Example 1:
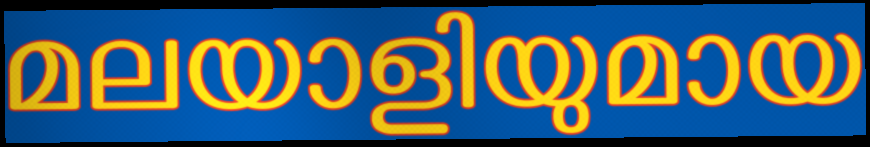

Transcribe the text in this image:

മലയാളിയുമായ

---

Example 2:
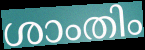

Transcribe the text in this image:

ശാംതിം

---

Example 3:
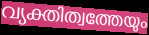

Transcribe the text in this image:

വ്യക്തിത്വത്തേയും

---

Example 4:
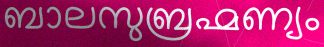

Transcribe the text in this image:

ബാലസുബ്രഹ്മണ്യം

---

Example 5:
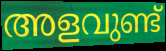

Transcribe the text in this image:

അളവുണ്ട്